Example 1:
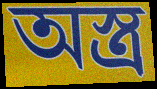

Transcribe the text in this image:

অস্ত্র্র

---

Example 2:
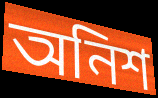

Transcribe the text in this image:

অনিশ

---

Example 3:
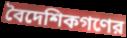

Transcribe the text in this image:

বৈদেশিকগণের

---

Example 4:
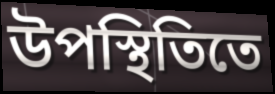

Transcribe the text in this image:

উপস্থিতিতে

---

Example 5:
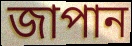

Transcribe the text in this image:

জাপান